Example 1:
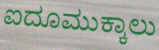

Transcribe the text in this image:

ಐದೂಮುಕ್ಕಾಲು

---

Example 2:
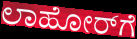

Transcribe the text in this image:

ಲಾಹೋರ್‌ಗೆ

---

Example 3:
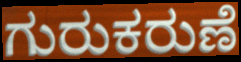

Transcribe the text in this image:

ಗುರುಕರುಣೆ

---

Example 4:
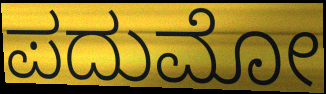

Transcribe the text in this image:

ಪದುಮೋ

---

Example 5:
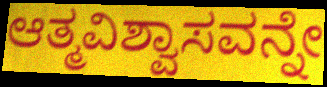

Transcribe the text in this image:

ಆತ್ಮವಿಶ್ವಾಸವನ್ನೇ